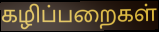
கழிப்பறைகள்